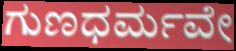
ಗುಣಧರ್ಮವೇ